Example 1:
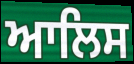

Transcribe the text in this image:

ਆਲਿਸ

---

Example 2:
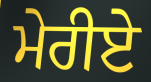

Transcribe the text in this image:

ਮੇਰੀਏ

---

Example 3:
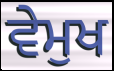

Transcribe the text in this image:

ਵੇਮੁਖ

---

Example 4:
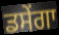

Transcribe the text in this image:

ਡਸੇਂਗਾ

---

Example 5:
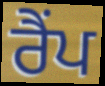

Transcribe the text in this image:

ਰੈਂਪ